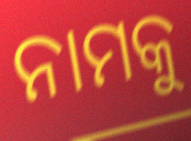
ନାମକୁ